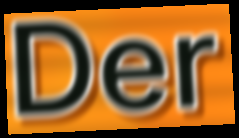
Der